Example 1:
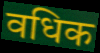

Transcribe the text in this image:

वधिक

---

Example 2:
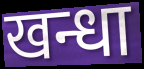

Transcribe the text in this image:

खन्धा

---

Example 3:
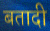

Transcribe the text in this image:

बतादी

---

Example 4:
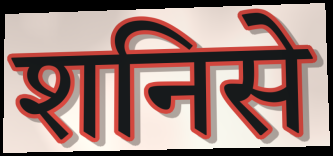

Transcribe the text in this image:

शनिसे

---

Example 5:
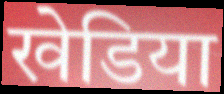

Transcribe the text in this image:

खेडिया